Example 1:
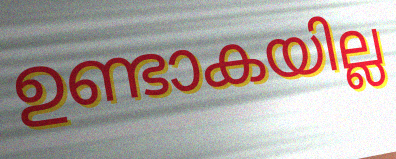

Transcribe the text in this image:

ഉണ്ടാകയില്ല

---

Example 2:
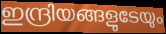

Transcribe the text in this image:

ഇന്ദ്രിയങ്ങളുടേയും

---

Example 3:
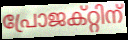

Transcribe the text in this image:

പ്രോജക്റ്റിന്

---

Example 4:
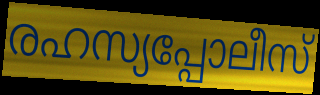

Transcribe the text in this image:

രഹസ്യപ്പോലീസ്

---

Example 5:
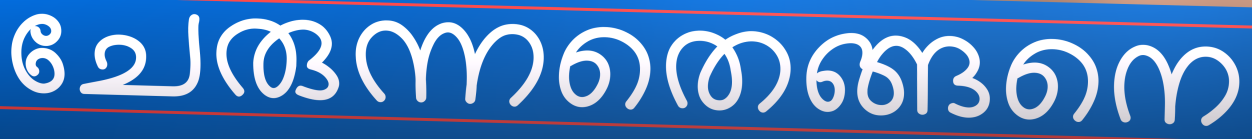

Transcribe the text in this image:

ചേരുന്നതെങ്ങനെ